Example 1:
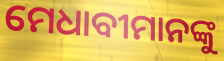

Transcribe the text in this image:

ମେଧାବୀମାନଙ୍କୁ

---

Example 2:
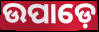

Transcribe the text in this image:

ଉପାଡ଼େ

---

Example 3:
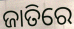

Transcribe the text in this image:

ଜାତିରେ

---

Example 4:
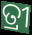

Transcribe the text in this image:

ତ୍ରୀ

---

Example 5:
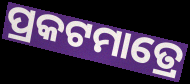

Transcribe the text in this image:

ପ୍ରକଟମାତ୍ରେ